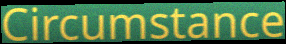
Circumstance